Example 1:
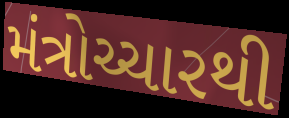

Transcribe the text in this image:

મંત્રોચ્ચારથી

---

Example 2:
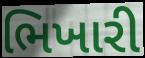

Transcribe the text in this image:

ભિખારી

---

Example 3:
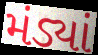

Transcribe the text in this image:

મંડ્યાં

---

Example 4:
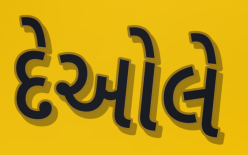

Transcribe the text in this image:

દેઓલે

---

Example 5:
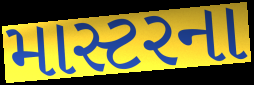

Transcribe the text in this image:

માસ્ટરના